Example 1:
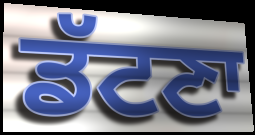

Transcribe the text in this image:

ਡੱਟਣਾ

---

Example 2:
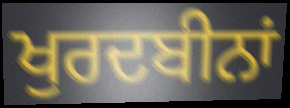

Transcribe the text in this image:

ਖੁਰਦਬੀਨਾਂ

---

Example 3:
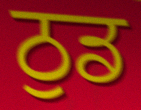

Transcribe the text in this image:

ਠੁਡ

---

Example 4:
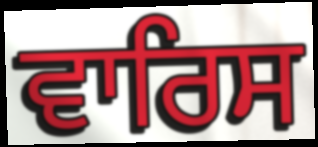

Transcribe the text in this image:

ਵਾਰਿਸ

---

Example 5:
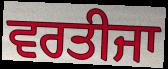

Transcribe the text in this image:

ਵਰਤੀਜਾ